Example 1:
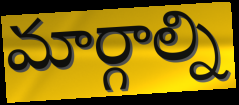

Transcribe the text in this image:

మార్గాల్ని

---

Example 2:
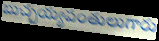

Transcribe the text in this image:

బుచ్చయ్యపంతులుగారు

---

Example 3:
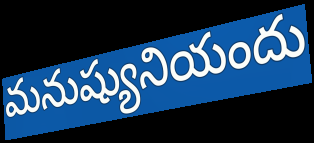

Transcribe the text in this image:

మనుష్యునియందు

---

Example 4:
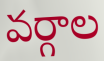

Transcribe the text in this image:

వర్గాల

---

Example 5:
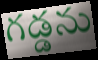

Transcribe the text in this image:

గడ్డను